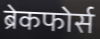
ब्रेकफोर्स